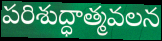
పరిశుద్ధాత్మవలన